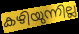
കഴിയുന്നില്ല